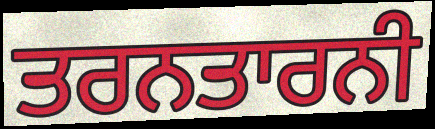
ਤਰਨਤਾਰਨੀ